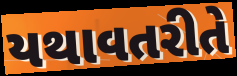
યથાવતરીતે